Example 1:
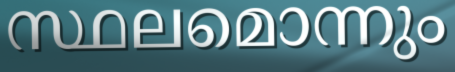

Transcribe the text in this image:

സ്ഥലമൊന്നും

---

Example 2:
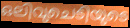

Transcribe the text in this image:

ഒലിവുചെടിയുടെ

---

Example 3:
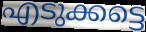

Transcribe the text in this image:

എടുക്കട്ടെ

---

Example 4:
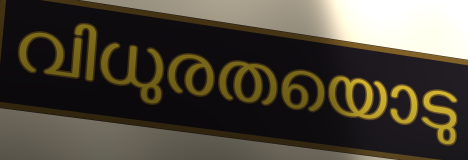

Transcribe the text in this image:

വിധുരതയൊടു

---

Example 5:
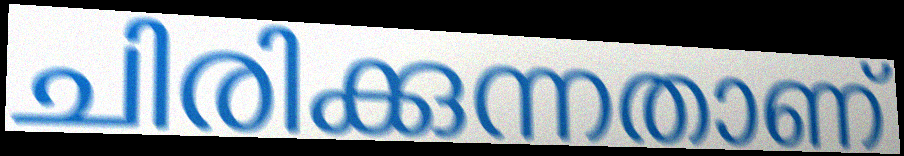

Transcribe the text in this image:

ചിരിക്കുന്നതാണ്